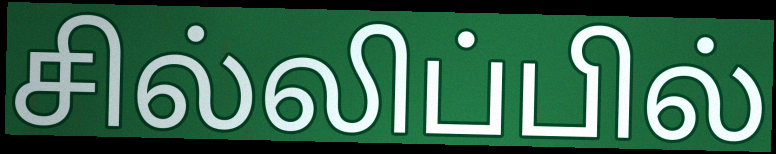
சில்லிப்பில்